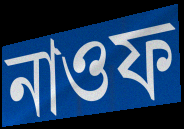
নাওফ